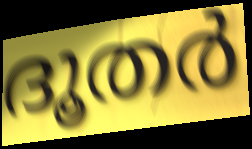
ദൂതർ